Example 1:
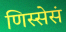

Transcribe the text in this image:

णिस्सेसं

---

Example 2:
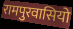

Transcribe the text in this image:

रामपुरवासियो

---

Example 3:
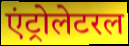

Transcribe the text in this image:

एंट्रोलेटरल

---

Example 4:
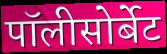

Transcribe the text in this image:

पॉलीसोर्बेट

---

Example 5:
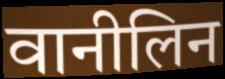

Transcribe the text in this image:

वानीलिन